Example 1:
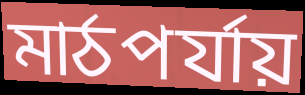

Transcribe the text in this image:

মাঠপর্যায়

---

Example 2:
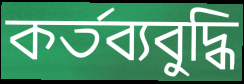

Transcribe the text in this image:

কর্তব্যবুদ্ধি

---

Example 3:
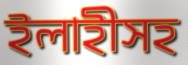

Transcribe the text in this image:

ইলাহীসহ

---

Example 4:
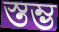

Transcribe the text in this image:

স্তম্ভ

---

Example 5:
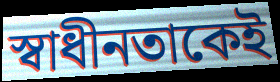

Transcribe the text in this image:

স্বাধীনতাকেই